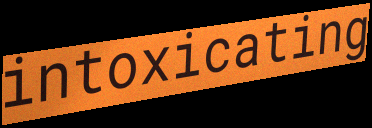
intoxicating